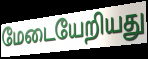
மேடையேறியது